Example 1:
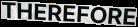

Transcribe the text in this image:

THEREFORE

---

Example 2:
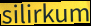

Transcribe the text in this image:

silirkum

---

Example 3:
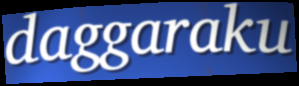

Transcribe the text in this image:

daggaraku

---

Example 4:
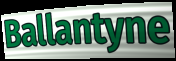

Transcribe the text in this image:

Ballantyne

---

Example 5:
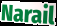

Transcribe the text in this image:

Narail